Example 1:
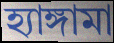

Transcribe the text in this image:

হ্যাঙ্গামা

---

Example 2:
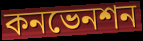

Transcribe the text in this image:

কনভেনশন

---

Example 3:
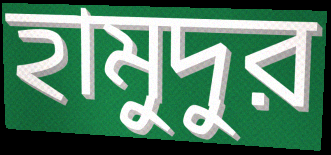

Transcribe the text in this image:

হামুদুর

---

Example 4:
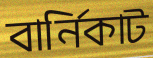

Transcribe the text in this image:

বার্নিকাট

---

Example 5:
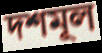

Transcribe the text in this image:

দশমূল